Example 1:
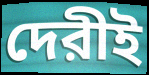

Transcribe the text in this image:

দেরীই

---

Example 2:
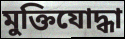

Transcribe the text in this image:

মুক্তিযোদ্ধা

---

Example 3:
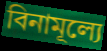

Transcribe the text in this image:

বিনামূল্যে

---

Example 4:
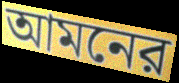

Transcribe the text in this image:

আমনের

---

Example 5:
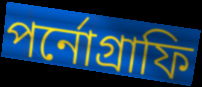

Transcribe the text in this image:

পর্নোগ্রাফি